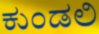
ಕುಂಡಲಿ